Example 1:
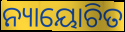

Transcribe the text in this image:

ନ୍ୟାୟୋଚିତ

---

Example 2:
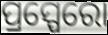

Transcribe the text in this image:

ପ୍ରସ୍ପେରୋ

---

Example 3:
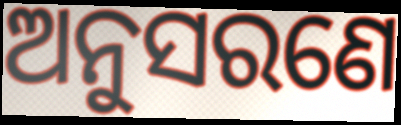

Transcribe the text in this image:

ଅନୁସରଣେ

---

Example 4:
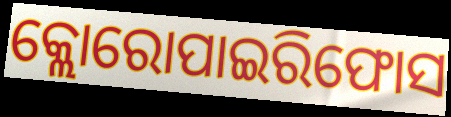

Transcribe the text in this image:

କ୍ଲୋରୋପାଇରିଫୋସ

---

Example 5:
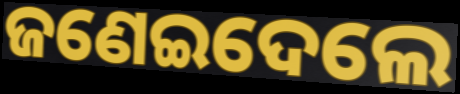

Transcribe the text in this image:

ଜଣେଇଦେଲେ